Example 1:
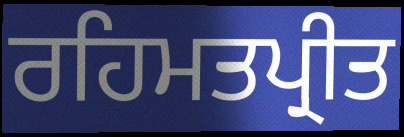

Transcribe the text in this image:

ਰਹਿਮਤਪ੍ਰੀਤ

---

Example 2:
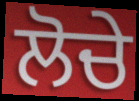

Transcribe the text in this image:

ਲੋਚੇ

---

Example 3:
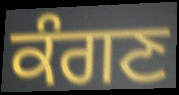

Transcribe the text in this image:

ਕੰਗਣ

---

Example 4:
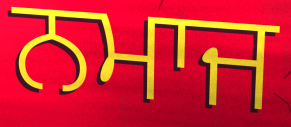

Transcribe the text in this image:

ਨਮਾਜ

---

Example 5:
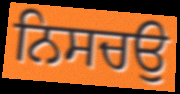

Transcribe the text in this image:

ਨਿਸਚਉ